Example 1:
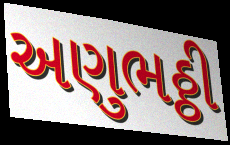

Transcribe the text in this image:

અણુભઠ્ઠી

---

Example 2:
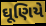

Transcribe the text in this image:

ઘૂણિયે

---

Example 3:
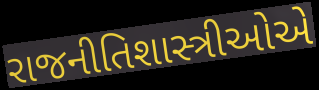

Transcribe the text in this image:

રાજનીતિશાસ્ત્રીઓએ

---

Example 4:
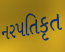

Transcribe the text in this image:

નરપતિકૃત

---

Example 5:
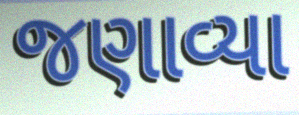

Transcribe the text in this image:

જણાવ્યા